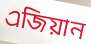
এজিয়ান